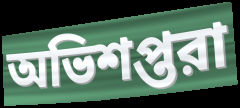
অভিশপ্তরা